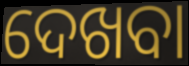
ଦେଖବା